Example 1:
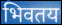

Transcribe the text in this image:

भिवतय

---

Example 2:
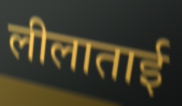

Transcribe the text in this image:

लीलाताई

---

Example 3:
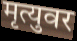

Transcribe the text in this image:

मृत्युवर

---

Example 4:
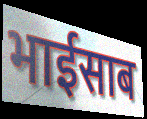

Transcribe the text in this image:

भाईसाब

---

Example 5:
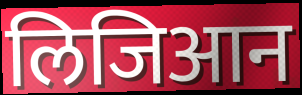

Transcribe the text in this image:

लिजिआन